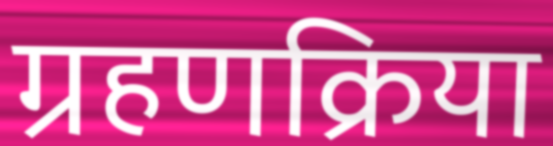
ग्रहणक्रिया